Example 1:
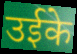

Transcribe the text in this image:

उईके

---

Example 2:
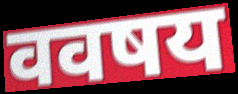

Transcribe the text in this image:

ववषय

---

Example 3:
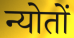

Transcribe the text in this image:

न्योतों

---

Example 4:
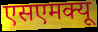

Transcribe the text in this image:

एसएमक्यू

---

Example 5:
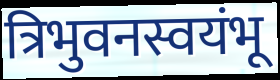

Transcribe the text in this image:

त्रिभुवनस्वयंभू